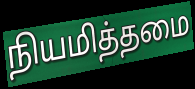
நியமித்தமை